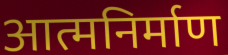
आत्मनिर्माण